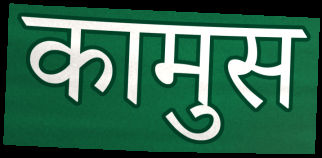
कामुस